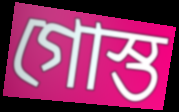
গোস্ত